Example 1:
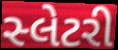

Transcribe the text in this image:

સ્લેટરી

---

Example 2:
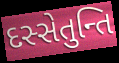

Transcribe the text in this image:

દસ્સેતુન્તિ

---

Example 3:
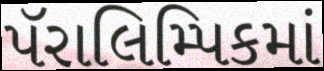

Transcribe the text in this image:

પૅરાલિમ્પિકમાં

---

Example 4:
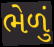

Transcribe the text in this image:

ભેળું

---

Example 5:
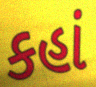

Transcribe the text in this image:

કહાં